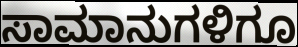
ಸಾಮಾನುಗಳಿಗೂ